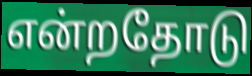
என்றதோடு